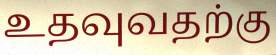
உதவுவதற்கு